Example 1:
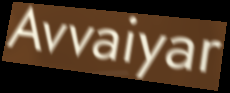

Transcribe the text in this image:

Avvaiyar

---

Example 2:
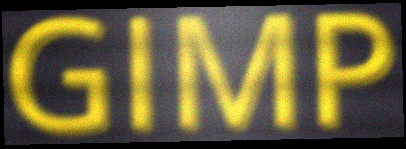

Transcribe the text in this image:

GIMP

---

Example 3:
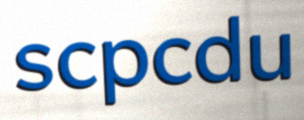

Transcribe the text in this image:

scpcdu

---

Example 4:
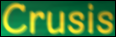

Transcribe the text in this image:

Crusis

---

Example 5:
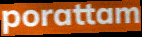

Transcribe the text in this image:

porattam